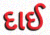
દાઈ